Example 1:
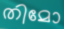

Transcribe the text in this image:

തിമോ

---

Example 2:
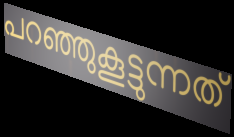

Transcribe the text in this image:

പറഞ്ഞുകൂട്ടുന്നത്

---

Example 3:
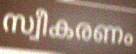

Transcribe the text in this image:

സ്വീകരണം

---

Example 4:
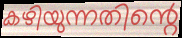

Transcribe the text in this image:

കഴിയുന്നതിന്റെ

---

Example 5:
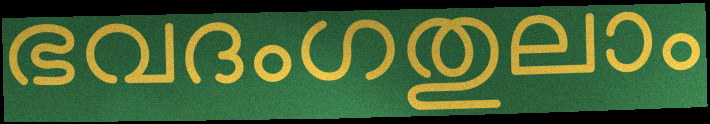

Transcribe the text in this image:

ഭവദംഗതുലാം